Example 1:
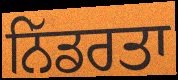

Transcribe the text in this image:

ਨਿੱਡਰਤਾ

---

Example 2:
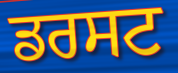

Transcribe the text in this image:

ਡਰਸਟ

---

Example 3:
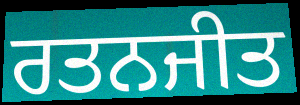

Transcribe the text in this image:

ਰਤਨਜੀਤ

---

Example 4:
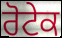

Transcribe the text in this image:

ਰੋਟੇਕ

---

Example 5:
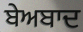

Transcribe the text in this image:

ਬੇਅਬਾਦ